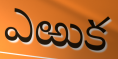
ఎఱుక